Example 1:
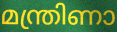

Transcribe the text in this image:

മന്ത്രിണാ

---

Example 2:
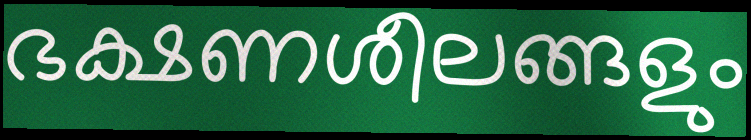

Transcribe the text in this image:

ഭക്ഷണശീലങ്ങളും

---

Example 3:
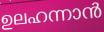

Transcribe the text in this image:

ഉലഹന്നാൻ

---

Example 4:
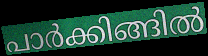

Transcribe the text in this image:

പാർക്കിങ്ങിൽ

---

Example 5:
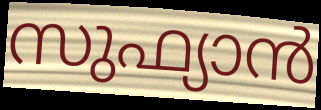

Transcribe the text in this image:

സുഫ്യാൻ